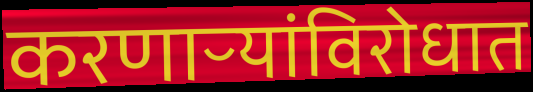
करणाऱ्यांविरोधात